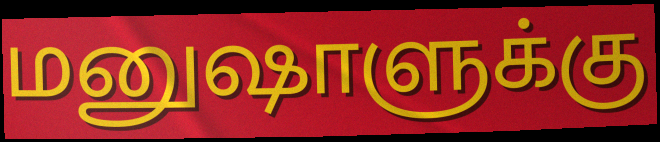
மனுஷாளுக்கு